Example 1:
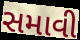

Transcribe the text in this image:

સમાવી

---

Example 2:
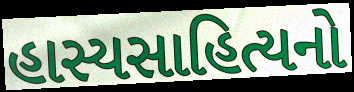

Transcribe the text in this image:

હાસ્યસાહિત્યનો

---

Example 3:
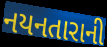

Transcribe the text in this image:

નયનતારાની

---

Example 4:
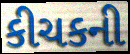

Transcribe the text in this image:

કીચકની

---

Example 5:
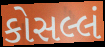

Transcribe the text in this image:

કોસલ્લં